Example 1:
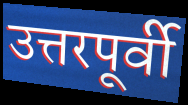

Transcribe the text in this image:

उत्तरपूर्वी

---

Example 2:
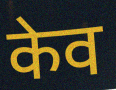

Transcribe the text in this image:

केव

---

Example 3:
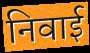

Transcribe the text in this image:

निवाई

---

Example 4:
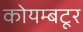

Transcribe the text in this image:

कोयम्‍बटूर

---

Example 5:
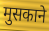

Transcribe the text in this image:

मुसकाने